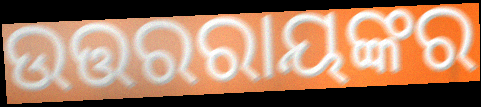
ଉତ୍ତରରାୟଙ୍କର